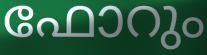
ഫോറും